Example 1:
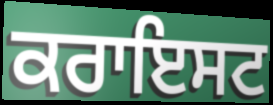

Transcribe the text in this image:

ਕਰਾਇਸਟ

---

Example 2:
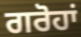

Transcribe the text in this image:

ਗਰੋਹਾਂ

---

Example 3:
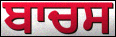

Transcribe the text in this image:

ਬਾਚਸ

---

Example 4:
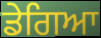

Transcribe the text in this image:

ਡੇਗਿਆ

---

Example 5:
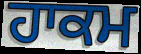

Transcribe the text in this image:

ਹਾਕਮ